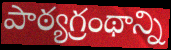
పాఠ్యగ్రంథాన్ని